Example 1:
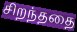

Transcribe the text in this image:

சிறந்ததை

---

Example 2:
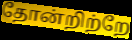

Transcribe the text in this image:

தோன்றிற்றே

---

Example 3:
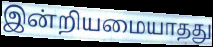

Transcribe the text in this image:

இன்றியமையாதது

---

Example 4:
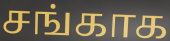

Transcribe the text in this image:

சங்காக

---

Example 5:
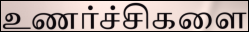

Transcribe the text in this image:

உணர்ச்சிகளை